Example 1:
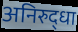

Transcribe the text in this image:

अनिरुद्धा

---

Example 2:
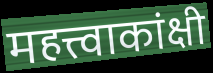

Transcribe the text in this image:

महत्त्वाकांक्षी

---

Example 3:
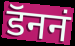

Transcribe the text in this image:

डॅननं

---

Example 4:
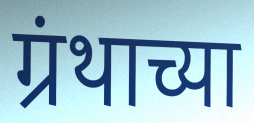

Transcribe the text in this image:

ग्रंथाच्या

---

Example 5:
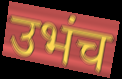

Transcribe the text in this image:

उभंच